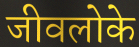
जीवलोके